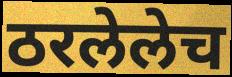
ठरलेलेच